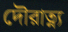
দৌরাত্ন্য